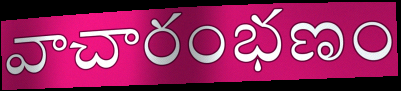
వాచారంభణం